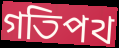
গতিপথ